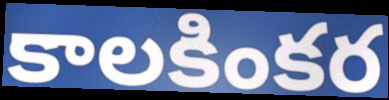
కాలకింకర